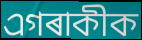
এগৰাকীক